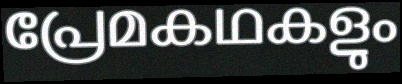
പ്രേമകഥകളും